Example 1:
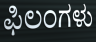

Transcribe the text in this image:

ಫಿಲಂಗಳು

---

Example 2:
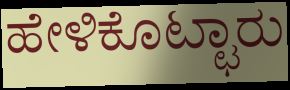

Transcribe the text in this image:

ಹೇಳಿಕೊಟ್ಟಾರು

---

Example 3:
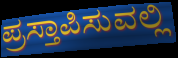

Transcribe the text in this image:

ಪ್ರಸ್ತಾಪಿಸುವಲ್ಲಿ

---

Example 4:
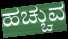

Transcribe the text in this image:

ಹಚ್ಚುವ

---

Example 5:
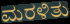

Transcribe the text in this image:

ಮರಳಿತು